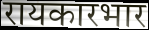
रायकारभार